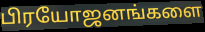
பிரயோஜனங்களை